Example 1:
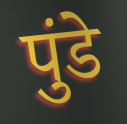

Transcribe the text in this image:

पुंडे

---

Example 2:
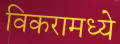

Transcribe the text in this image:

विकरामध्ये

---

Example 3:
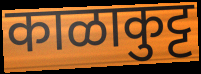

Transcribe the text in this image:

काळाकुट्ट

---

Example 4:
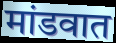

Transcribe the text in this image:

मांडवात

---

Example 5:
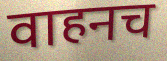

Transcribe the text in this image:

वाहनच